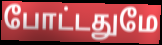
போட்டதுமே